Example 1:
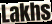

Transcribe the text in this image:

Lakhs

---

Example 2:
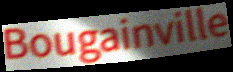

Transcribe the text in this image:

Bougainville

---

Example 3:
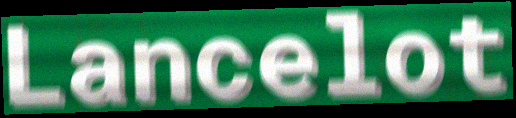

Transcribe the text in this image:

Lancelot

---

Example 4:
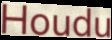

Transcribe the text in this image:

Houdu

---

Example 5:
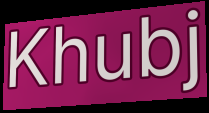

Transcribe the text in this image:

Khubj